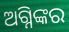
ଅଗ୍ନିଙ୍କର